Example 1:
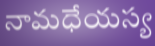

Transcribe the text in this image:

నామధేయస్య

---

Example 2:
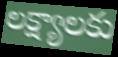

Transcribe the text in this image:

లక్ష్యాలకు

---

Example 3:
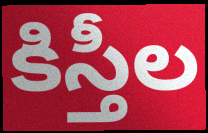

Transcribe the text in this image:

కిస్తీల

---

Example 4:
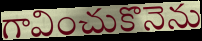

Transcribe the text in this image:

గావించుకొనెను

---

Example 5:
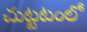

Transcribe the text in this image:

చుట్టటంలో